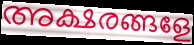
അക്ഷരങ്ങളേ